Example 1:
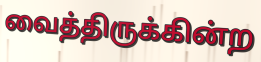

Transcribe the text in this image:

வைத்திருக்கின்ற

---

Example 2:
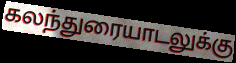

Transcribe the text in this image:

கலந்துரையாடலுக்கு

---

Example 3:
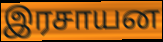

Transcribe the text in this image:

இரசாயன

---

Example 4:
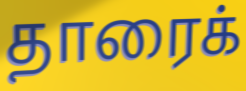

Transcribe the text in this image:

தாரைக்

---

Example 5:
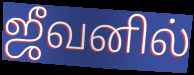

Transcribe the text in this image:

ஜீவனில்